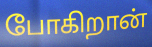
போகிறான்